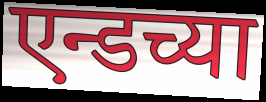
एन्डच्या